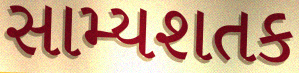
સામ્યશતક